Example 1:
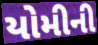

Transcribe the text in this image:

યોમીની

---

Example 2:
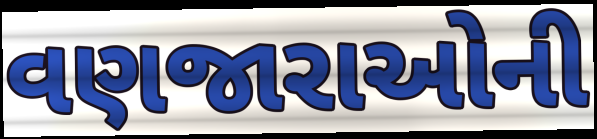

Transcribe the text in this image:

વણજારાઓની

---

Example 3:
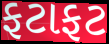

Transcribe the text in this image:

ફટાફટ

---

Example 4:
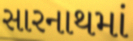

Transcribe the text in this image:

સારનાથમાં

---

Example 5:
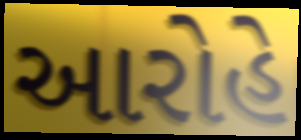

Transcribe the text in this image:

આરોહે